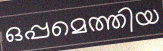
ഒപ്പമെത്തിയ